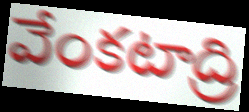
వేంకటాద్రి